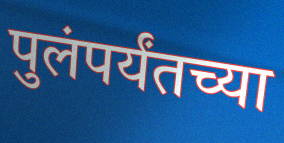
पुलंपर्यंतच्या